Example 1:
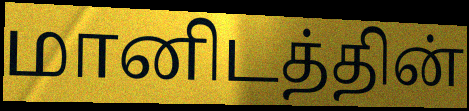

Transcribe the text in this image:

மானிடத்தின்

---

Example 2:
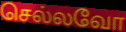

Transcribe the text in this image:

செல்லவோ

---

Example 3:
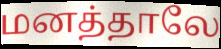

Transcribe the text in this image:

மனத்தாலே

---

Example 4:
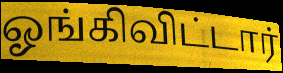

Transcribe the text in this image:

ஓங்கிவிட்டார்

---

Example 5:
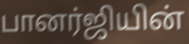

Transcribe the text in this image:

பானர்ஜியின்